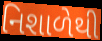
નિશાળેથી